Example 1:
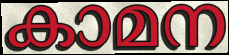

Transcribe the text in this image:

കാമന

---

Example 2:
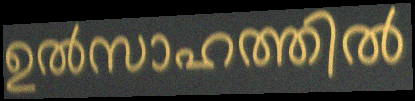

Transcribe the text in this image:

ഉൽസാഹത്തിൽ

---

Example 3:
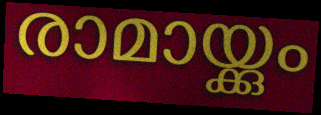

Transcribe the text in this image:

രാമായ്ക്കും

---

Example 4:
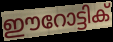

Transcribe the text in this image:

ഈറോട്ടിക്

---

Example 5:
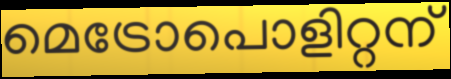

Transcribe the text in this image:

മെട്രോപൊളിറ്റന്